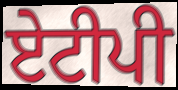
ਏਟੀਪੀ